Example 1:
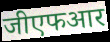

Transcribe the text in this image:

जीएफआर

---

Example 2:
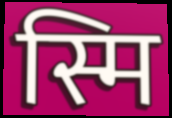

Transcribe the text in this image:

स्मि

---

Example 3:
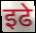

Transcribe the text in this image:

इढे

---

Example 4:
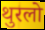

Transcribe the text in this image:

थुरलो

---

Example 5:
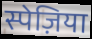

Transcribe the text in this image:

स्पेज़िया